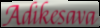
Adikesava